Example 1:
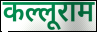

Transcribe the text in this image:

कल्लूराम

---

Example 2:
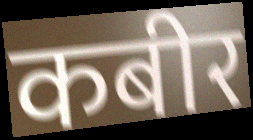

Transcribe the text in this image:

कबीर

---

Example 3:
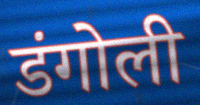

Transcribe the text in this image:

डंगोली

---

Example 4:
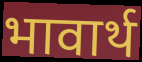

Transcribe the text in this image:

भावार्थ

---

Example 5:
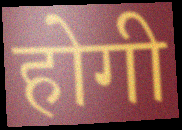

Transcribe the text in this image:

होगी